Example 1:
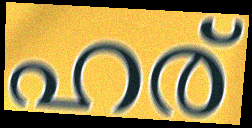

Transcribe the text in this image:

ഹര്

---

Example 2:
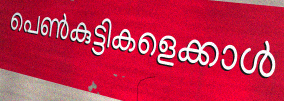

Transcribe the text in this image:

പെൺകുട്ടികളെക്കാൾ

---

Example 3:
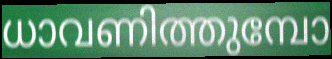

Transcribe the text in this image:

ധാവണിത്തുമ്പോ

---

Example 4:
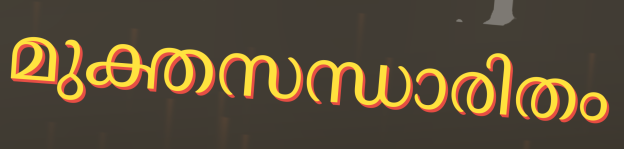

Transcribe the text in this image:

മുക്തസന്ധാരിതം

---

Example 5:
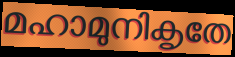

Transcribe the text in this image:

മഹാമുനികൃതേ